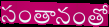
సంతానంతో